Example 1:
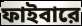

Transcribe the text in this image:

ফাইবারে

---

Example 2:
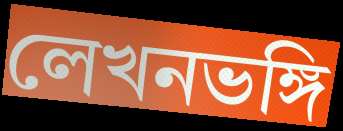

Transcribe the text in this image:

লেখনভঙ্গি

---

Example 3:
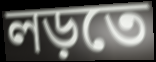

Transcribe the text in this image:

লড়তে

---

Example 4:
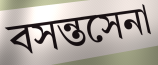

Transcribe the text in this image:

বসন্তসেনা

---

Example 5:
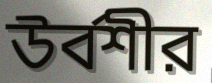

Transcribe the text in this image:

উর্বশীর